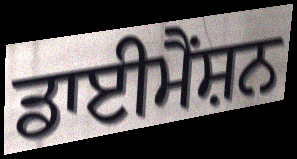
ਡਾਈਮੈਂਸ਼ਨ